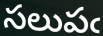
సలుపఁ